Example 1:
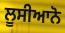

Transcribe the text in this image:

ਲੂਸੀਆਨੋ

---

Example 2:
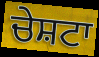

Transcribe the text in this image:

ਚੇਸ਼ਟਾ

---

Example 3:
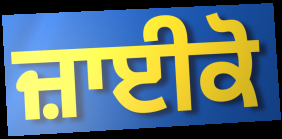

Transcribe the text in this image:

ਜ਼ਾਈਕੋ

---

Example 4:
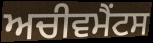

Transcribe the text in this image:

ਅਚੀਵਮੈਂਟਸ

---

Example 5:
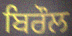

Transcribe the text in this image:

ਬਿਰੌਲ